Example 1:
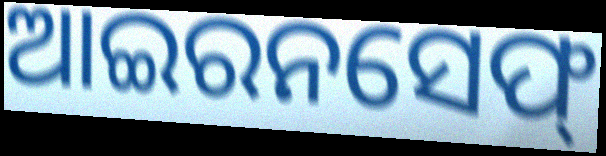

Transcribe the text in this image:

ଆଇରନସେଫ୍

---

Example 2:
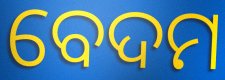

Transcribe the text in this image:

ବେଦମ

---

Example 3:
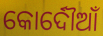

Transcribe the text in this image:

କୋର୍ଦୌଆଁ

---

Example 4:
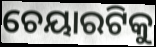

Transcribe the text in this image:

ଚେୟାରଟିକୁ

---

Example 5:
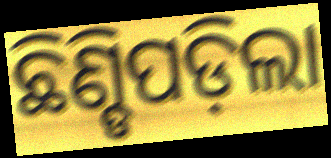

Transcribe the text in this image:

ଛିଣ୍ଡିପଡ଼ିଲା